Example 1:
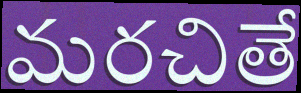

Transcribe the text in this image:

మరచితే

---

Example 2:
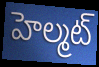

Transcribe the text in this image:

హెల్మట్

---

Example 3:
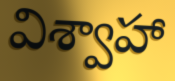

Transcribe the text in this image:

విశ్వాహా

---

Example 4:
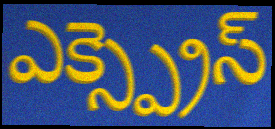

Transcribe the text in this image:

ఎక్స్ప్రెస్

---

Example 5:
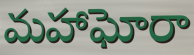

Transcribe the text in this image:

మహాఘోరా